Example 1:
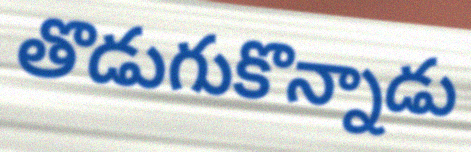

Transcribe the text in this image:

తొడుగుకొన్నాడు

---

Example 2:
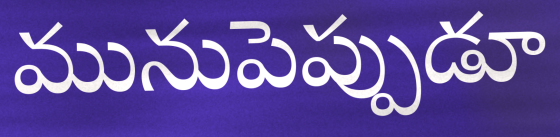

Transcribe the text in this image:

మునుపెప్పుడూ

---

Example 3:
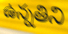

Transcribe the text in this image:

ఉన్నతిని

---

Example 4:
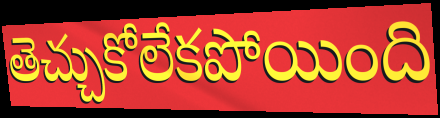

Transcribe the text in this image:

తెచ్చుకోలేకపోయింది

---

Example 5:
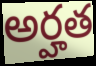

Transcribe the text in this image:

అర్హత